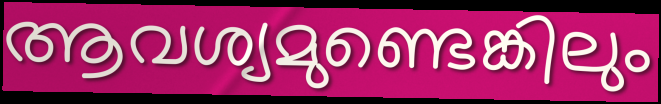
ആവശ്യമുണ്ടെങ്കിലും